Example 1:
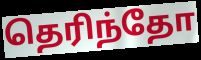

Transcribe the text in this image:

தெரிந்தோ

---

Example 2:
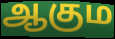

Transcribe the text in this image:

ஆகும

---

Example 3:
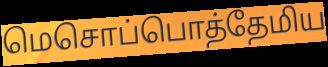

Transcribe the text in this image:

மெசொப்பொத்தேமிய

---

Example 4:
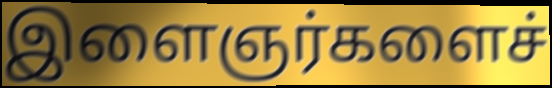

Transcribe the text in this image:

இளைஞர்களைச்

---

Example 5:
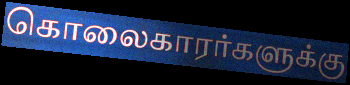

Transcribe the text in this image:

கொலைகாரர்களுக்கு